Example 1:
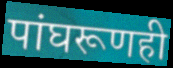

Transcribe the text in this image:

पांघरूणही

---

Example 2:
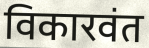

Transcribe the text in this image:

विकारवंत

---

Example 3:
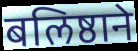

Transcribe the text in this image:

बलिष्ठाने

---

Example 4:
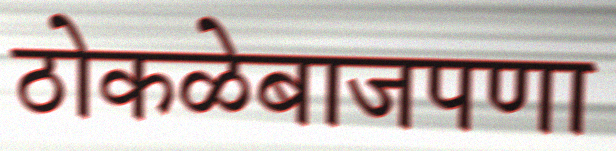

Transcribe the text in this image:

ठोकळेबाजपणा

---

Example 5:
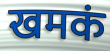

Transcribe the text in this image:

खमकं